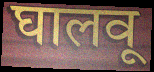
घालवू